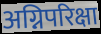
अग्निपरिक्षा